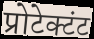
प्रोटेक्टंट